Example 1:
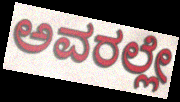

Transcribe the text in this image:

ಅವರಲ್ಲೇ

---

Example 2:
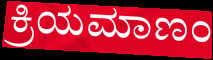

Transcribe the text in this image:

ಕ್ರಿಯಮಾಣಂ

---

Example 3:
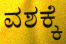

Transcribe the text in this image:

ವಶಕ್ಕೆ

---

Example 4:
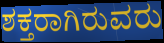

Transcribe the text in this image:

ಶಕ್ತರಾಗಿರುವರು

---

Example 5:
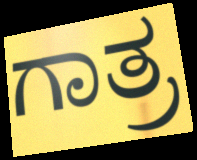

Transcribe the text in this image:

ಗಾತ್ರ